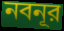
নবনূর